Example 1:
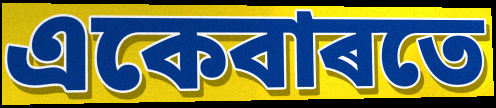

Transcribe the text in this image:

একেবাৰতে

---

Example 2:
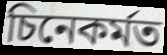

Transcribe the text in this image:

চিনেকৰ্মত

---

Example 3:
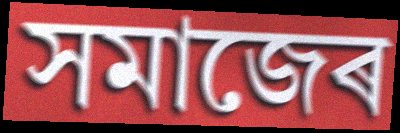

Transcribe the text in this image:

সমাজেৰ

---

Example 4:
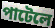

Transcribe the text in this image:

পাটেলে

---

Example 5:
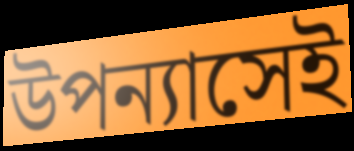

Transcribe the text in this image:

উপন্যাসেই